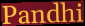
Pandhi